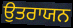
ਉਤਰਾਯਨ